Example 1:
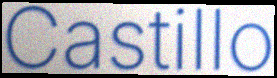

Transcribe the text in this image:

Castillo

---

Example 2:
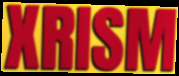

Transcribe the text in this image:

XRISM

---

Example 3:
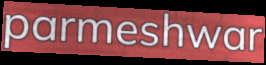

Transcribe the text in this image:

parmeshwar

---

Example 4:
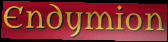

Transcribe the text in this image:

Endymion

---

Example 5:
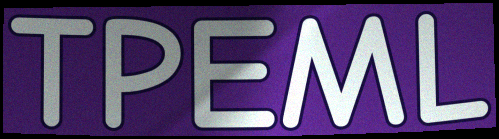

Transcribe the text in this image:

TPEML